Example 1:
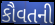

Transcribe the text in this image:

કૌવતની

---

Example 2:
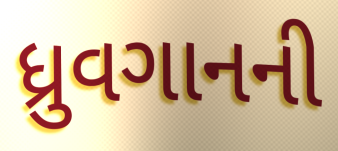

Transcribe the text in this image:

ધ્રુવગાનની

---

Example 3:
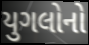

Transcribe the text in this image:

યુગલોનો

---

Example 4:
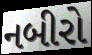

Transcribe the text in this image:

નબીરો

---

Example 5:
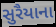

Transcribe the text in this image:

સુરૈયાના